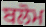
ਬਲੋਮ